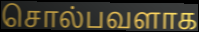
சொல்பவளாக